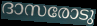
ദാസരോടു